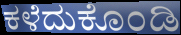
ಕಳೆದುಕೊಂಡಿ